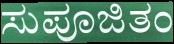
ಸುಪೂಜಿತಂ